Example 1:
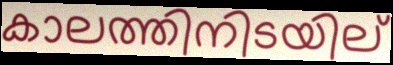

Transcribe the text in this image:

കാലത്തിനിടയില്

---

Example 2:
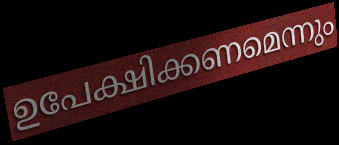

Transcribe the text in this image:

ഉപേക്ഷിക്കണമെന്നും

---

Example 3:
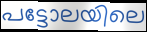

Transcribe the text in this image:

പട്ടോലയിലെ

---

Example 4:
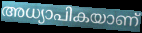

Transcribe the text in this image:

അധ്യാപികയാണ്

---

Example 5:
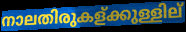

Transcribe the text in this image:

നാലതിരുകള്ക്കുള്ളില്